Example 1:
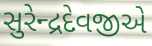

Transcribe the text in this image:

સુરેન્દ્રદેવજીએ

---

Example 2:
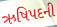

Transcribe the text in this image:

ઋષિપદની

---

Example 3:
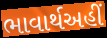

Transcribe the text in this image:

ભાવાર્થઅહીં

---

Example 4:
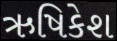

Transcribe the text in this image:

ઋષિકેશ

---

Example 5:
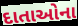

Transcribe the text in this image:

દાતાઓના